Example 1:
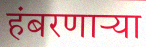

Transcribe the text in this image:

हंबरणाऱ्या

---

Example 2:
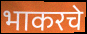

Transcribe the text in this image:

भाकरचे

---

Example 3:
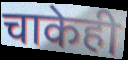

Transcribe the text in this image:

चाकेही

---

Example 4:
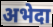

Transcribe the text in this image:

अभेदा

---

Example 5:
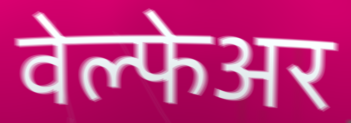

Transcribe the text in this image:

वेल्फेअर